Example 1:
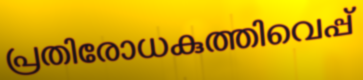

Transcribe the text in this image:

പ്രതിരോധകുത്തിവെപ്പ്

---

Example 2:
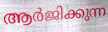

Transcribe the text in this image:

ആർജിക്കുന്ന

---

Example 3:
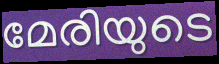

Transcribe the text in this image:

മേരിയുടെ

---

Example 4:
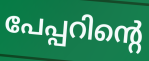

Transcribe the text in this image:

പേപ്പറിന്റെ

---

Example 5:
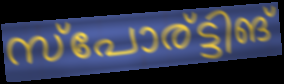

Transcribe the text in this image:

സ്പോര്ട്ടിങ്